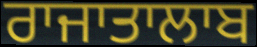
ਰਾਜਾਤਾਲਾਬ